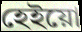
হেইয়ো